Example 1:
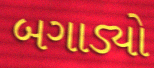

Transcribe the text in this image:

બગાડ્યો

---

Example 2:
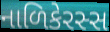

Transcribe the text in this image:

નાળિકેરસ્સ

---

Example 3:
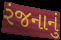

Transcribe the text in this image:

રંજનાનું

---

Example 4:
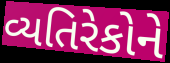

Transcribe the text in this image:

વ્યતિરેકોને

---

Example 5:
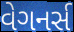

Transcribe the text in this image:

વેગનર્સ